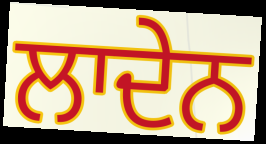
ਲਾਦੇਨ